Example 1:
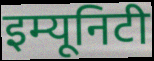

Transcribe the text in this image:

इम्यूनिटी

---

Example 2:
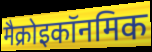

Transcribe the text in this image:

मैक्रोइकॉनमिक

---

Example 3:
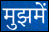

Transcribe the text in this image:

मुझमें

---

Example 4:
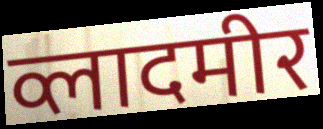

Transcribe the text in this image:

व्लादमीर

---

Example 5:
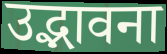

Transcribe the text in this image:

उद्भावना